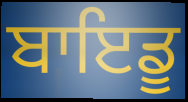
ਬਾਇਡੂ